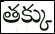
తక్కు